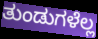
ತುಂಡುಗಳೆಲ್ಲ